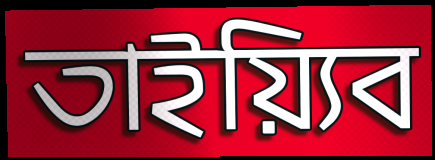
তাইয়্যিব